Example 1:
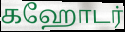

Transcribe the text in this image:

கஹோடர்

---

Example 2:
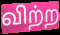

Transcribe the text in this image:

விற்ற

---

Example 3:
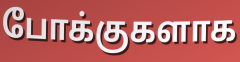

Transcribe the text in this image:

போக்குகளாக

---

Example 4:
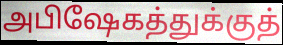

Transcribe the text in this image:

அபிஷேகத்துக்குத்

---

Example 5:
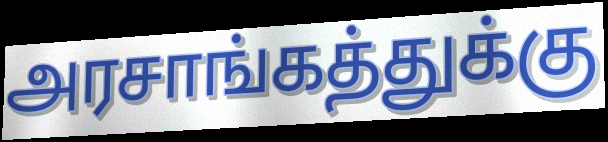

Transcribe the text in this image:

அரசாங்கத்துக்கு